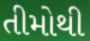
તીમોથી